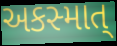
અકસ્માત્